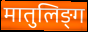
मातुलिङ्ग